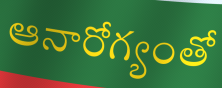
ఆనారోగ్యంతో